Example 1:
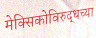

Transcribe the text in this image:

मेक्सिकोविरुद्धच्या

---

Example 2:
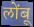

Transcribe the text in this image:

लोंबू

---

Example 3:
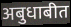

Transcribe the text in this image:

अबुधाबीत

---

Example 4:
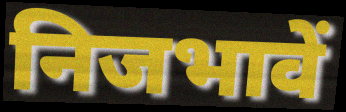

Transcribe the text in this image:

निजभावें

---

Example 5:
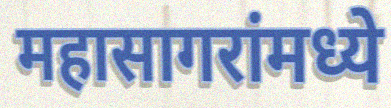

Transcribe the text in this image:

महासागरांमध्ये